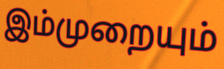
இம்முறையும்